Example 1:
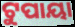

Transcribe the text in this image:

ଟୁପାୟା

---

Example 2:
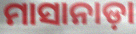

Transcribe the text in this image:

ମାସାନାଡ଼ା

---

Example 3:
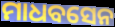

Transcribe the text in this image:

ମାଧବସେନ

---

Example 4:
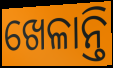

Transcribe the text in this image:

ଖେଳାନ୍ତି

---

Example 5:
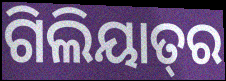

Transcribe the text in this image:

ଗିଲିୟାତ୍‍ର